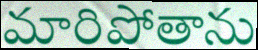
మారిపోతాను